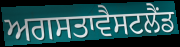
ਅਗਸਤਾਵੈਸਟਲੈਂਡ